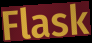
Flask